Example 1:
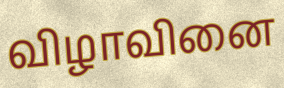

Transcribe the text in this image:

விழாவினை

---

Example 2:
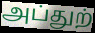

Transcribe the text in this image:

அப்துற்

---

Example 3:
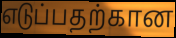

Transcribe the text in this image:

எடுப்பதற்கான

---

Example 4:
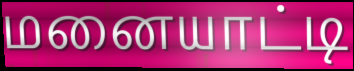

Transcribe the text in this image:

மனையாட்டி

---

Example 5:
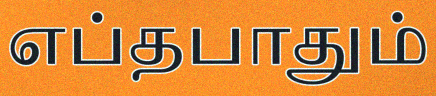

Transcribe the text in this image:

எப்தபாதும்